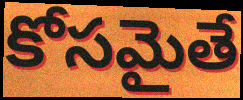
కోసమైతే